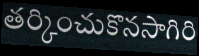
తర్కించుకొనసాగిరి